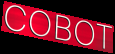
COBOT